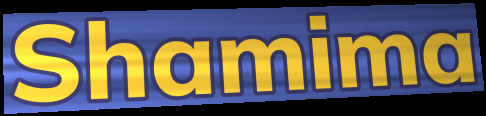
Shamima